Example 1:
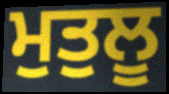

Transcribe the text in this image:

ਮੁਤੁਲੂ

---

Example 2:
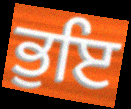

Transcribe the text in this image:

ਭੁਇ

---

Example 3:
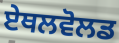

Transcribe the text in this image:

ਏਥਲਵੋਲਡ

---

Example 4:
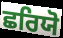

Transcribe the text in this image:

ਛਰਿਯੋ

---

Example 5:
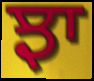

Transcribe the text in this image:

ਝਾ